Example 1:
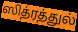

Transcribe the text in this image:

ஸித்ரத்துல்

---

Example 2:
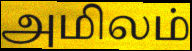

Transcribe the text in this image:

அமிலம்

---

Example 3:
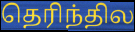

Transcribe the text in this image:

தெரிந்தில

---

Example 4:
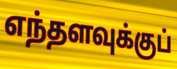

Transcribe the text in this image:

எந்தளவுக்குப்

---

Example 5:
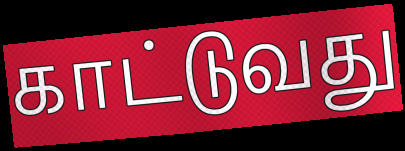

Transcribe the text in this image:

காட்டுவது